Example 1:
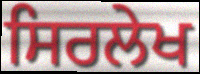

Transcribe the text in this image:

ਸਿਰਲੇਖ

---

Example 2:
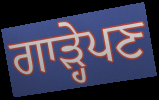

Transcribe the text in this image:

ਗਾੜ੍ਹੇਪਣ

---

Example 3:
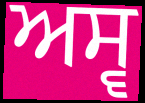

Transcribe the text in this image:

ਅਸ੍ਵ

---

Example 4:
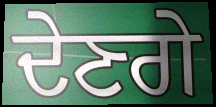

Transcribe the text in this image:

ਦੇਣਗੇ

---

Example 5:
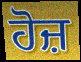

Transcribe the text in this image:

ਹੋਜ਼